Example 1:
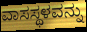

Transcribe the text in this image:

ವಾಸಸ್ಥಳವನ್ನು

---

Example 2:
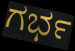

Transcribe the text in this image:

ಗರ್ಭ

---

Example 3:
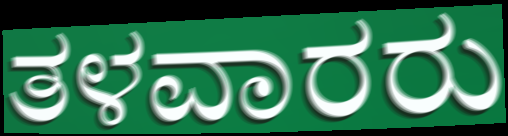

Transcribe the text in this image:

ತಳವಾರರು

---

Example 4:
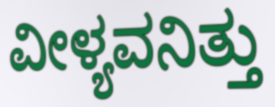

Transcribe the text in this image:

ವೀಳ್ಯವನಿತ್ತು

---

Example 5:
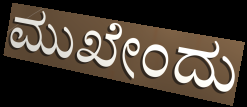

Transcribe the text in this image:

ಮುಖೇಂದು